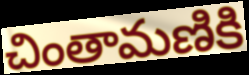
చింతామణికి